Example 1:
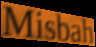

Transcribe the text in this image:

Misbah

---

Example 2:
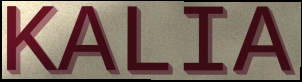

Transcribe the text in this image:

KALIA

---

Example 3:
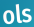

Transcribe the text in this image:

ols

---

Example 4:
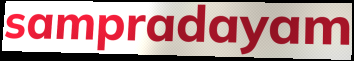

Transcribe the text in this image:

sampradayam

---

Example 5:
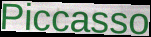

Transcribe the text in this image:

Piccasso